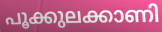
പൂക്കുലക്കാണി